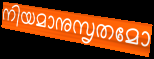
നിയമാനുസൃതമോ